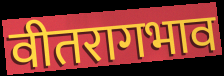
वीतरागभाव